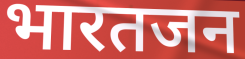
भारतजन